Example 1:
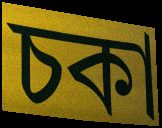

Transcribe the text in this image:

চকা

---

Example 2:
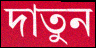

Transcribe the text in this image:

দাতুন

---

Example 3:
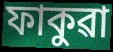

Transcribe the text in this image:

ফাকুৱা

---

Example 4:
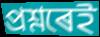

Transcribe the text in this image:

প্ৰশ্নৰেই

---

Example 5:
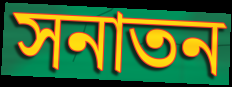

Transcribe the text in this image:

সনাতন